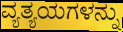
ವ್ಯತ್ಯಯಗಳನ್ನು